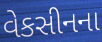
વેકસીનના